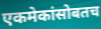
एकमेकांसोबतच